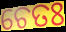
ଚେତଃ